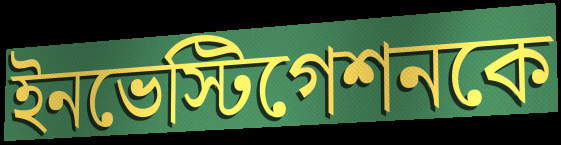
ইনভেস্টিগেশনকে